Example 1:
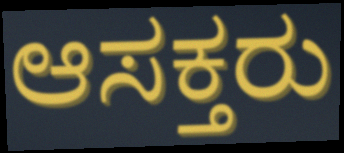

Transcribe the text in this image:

ಆಸಕ್ತರು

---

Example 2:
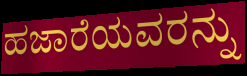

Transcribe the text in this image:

ಹಜಾರೆಯವರನ್ನು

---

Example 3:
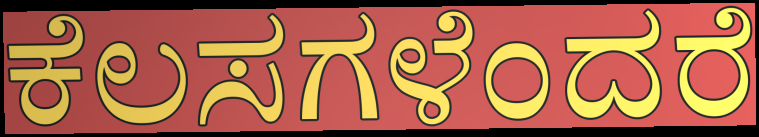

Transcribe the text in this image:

ಕೆಲಸಗಳೆಂದರೆ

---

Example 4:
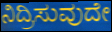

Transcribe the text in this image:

ನಿದ್ರಿಸುವುದೇ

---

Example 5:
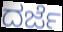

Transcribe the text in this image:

ದರ್ಜೆ